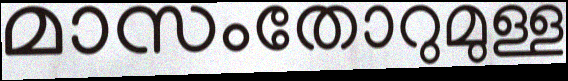
മാസംതോറുമുള്ള